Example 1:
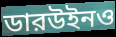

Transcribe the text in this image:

ডারউইনও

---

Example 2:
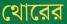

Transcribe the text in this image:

থোরের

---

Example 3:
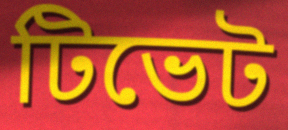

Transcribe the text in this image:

টিভেট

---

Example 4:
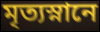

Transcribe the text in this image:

মৃত্যস্নানে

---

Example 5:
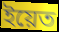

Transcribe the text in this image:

ইয়েত